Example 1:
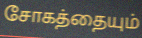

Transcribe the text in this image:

சோகத்தையும்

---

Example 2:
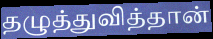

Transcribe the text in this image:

தழுத்துவித்தான்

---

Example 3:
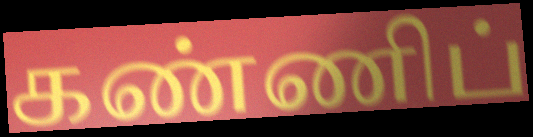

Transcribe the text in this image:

கண்ணிப்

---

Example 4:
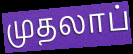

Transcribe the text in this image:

முதலாப்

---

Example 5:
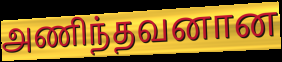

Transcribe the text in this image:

அணிந்தவனான